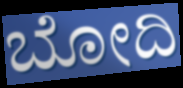
ಬೋದಿ